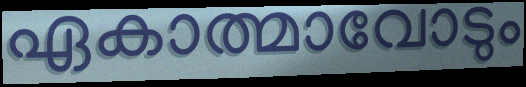
ഏകാത്മാവോടും